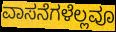
ವಾಸನೆಗಳೆಲ್ಲವೂ